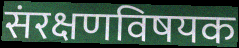
संरक्षणविषयक